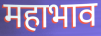
महाभाव